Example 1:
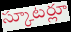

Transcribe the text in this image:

స్కూటర్లూ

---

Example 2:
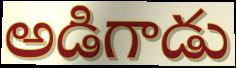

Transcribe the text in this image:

అడిగాడు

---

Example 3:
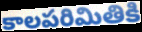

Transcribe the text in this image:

కాలపరిమితికి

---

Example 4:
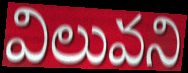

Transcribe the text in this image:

విలువని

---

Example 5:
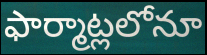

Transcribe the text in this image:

ఫార్మాట్లలోనూ